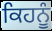
ਕਿਹਨੂੰ